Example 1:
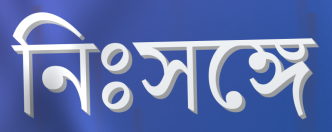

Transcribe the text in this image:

নিঃসঙ্গে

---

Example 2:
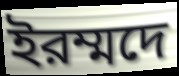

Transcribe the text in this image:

ইরম্মদে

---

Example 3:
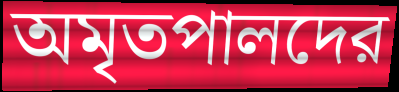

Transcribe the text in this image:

অমৃতপালদের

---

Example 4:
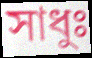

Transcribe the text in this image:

সাধুঃ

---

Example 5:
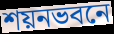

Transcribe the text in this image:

শয়নভবনে